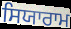
ਸਿਯਾਰਾਮ